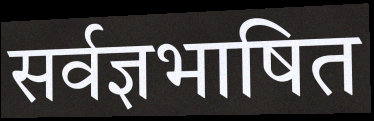
सर्वज्ञभाषित